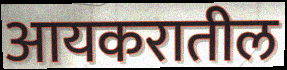
आयकरातील